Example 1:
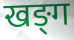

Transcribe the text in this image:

खङ्ग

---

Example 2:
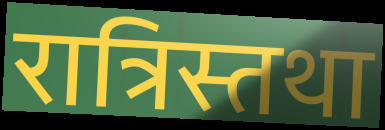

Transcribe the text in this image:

रात्रिस्तथा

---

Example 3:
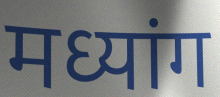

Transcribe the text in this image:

मध्यांग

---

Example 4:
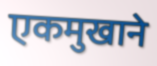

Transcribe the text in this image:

एकमुखाने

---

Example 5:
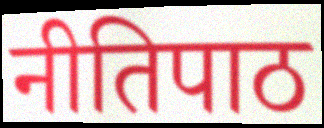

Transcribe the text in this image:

नीतिपाठ